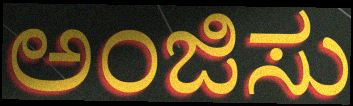
ಅಂಜಿಸು